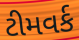
ટીમવર્ક